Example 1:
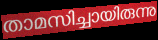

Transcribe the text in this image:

താമസിച്ചായിരുന്നു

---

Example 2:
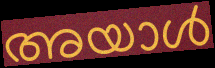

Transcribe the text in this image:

അയാൾ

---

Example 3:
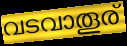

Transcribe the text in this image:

വടവാതൂര്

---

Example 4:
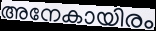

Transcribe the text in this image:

അനേകായിരം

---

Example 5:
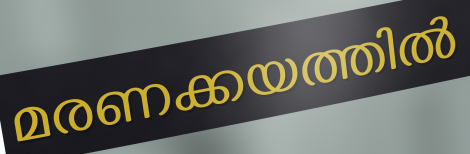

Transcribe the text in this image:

മരണക്കയത്തിൽ